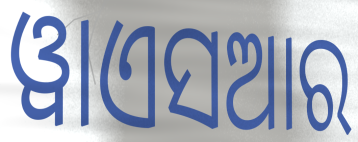
ୱାଏସଆର